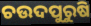
ଚଉଦପୁରୁଷି